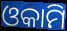
ଓକାମି